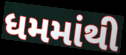
ધમમાંથી